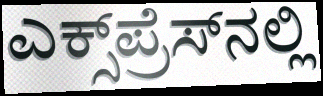
ಎಕ್ಸ್‌ಪ್ರೆಸ್‌ನಲ್ಲಿ